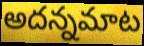
అదన్నమాట